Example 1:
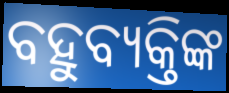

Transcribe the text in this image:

ବହୁବ୍ୟକ୍ତିଙ୍କ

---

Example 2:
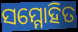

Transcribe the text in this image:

ସମ୍ମୋହିତ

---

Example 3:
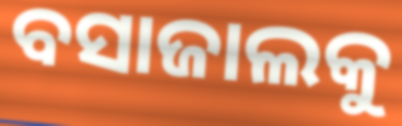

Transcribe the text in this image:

ବସାଜାଲକୁ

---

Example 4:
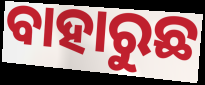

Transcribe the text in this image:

ବାହାରୁଛ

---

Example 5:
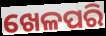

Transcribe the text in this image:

ଖେଳପରି